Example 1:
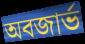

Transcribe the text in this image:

অবজার্ভ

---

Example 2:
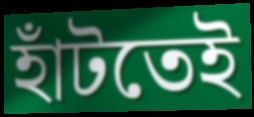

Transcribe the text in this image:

হাঁটতেই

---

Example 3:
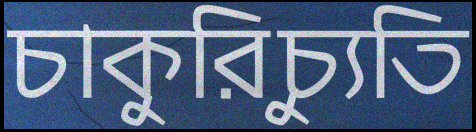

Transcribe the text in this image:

চাকুরিচ্যুতি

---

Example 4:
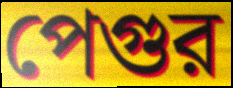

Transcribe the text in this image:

পেগুর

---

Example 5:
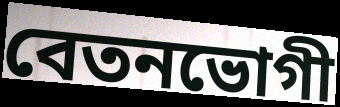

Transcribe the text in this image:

বেতনভোগী